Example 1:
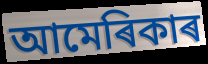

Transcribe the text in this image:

আমেৰিকাৰ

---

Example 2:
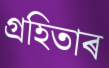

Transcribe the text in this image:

গ্ৰহিতাৰ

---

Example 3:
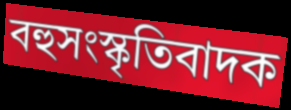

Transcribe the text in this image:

বহুসংস্কৃতিবাদক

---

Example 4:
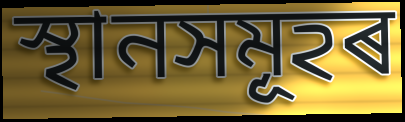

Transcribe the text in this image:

স্থানসমূহৰ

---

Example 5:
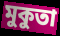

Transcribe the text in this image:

মুকুতা